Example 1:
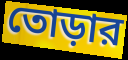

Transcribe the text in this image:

তোড়ার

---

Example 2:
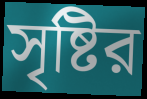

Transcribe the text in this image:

সৃষ্টির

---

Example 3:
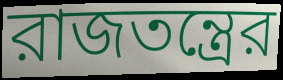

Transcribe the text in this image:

রাজতন্ত্রের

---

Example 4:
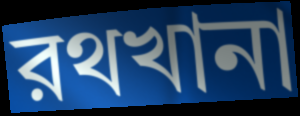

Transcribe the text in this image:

রথখানা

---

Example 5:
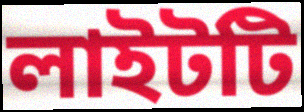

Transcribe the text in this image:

লাইটটি